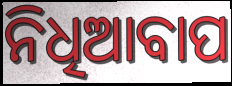
ନିଧିଆବାପ